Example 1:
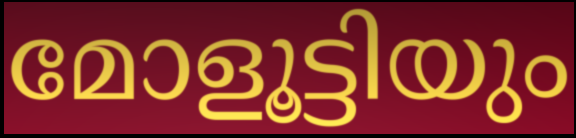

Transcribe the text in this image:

മോളൂട്ടിയും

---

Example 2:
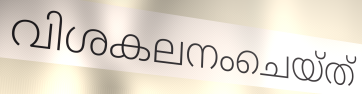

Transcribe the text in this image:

വിശകലനംചെയ്ത്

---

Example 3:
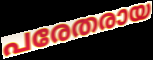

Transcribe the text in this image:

പരേതരായ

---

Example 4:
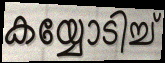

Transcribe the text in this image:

കയ്യോടിച്ച്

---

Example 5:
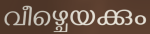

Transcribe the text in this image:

വീഴ്ചെയക്കും